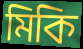
মিকি